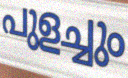
പുളച്ചും